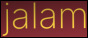
jalam